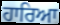
ਹਾਰਿਆ